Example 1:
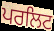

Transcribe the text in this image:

ਪਰਲਿਟ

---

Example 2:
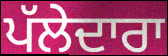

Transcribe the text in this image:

ਪੱਲੇਦਾਰਾ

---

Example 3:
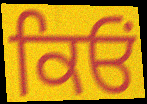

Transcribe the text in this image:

ਕਿਓਂ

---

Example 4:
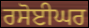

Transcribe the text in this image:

ਰਸੋਈਘਰ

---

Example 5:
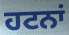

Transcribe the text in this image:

ਹਟਨਾਂ